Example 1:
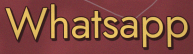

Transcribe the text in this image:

Whatsapp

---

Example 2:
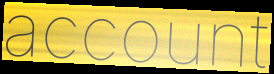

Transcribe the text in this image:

account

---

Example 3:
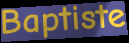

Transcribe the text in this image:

Baptiste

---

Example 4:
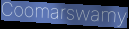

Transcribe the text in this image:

Coomarswamy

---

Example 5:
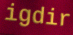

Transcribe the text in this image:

igdir